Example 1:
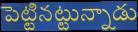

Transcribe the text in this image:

పెట్టినట్టున్నాడు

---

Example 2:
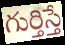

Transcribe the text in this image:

గుర్తిస్తే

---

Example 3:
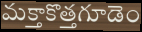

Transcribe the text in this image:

మక్తాకొత్తగూడెం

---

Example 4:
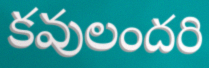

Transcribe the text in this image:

కవులందరి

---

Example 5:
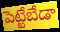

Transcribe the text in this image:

పెట్టేబేడా